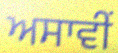
ਅਸਾਵੀਂ